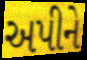
અપીને